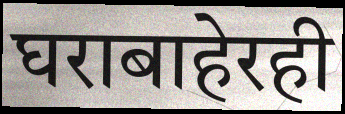
घराबाहेरही